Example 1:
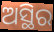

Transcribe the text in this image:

ଅସ୍ଥିର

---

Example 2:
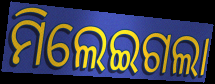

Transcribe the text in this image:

ମିଲେଇଗଲା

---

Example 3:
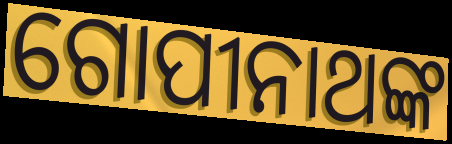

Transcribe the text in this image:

ଗୋପୀନାଥଙ୍କ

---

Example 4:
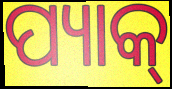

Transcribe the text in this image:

ପ୍ୟାକ୍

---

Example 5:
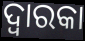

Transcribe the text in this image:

ଦ୍ୱାରକା